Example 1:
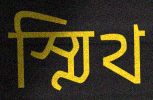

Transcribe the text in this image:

স্মিথ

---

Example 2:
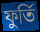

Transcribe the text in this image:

ফুৰ্তি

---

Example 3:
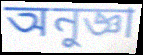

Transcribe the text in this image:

অনুজ্ঞা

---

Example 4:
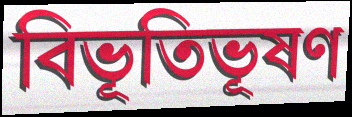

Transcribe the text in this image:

বিভূতিভূষণ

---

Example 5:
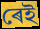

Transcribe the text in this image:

ৰেই